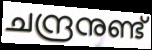
ചന്ദ്രനുണ്ട്